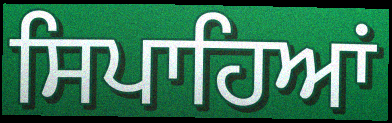
ਸਿਪਾਹਿਆਂ